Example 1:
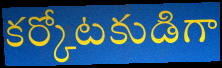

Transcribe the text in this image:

కర్కోటకుడిగా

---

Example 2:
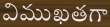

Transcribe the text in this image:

విముఖతగా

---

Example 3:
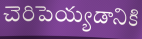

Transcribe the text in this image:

చెరిపెయ్యడానికి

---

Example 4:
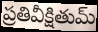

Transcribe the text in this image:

ప్రతివీక్షితుమ్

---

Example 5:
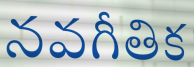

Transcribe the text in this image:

నవగీతిక